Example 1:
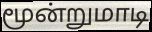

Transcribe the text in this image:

மூன்றுமாடி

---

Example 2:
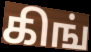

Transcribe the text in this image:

கிங்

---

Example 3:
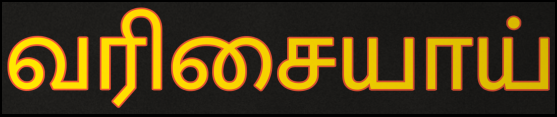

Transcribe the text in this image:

வரிசையாய்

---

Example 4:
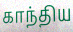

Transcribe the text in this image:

காந்திய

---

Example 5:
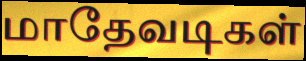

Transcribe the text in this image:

மாதேவடிகள்